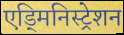
एड्मिनिस्ट्रेशन